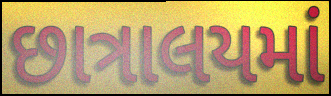
છાત્રાલયમાં